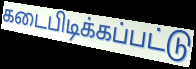
கடைபிடிக்கப்பட்டு